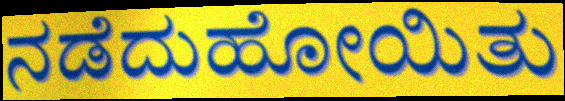
ನಡೆದುಹೋಯಿತು